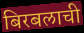
बिरबलाची